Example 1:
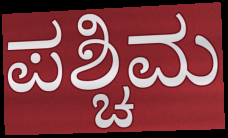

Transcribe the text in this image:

ಪಶ್ಚಿಮ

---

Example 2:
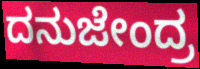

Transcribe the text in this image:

ದನುಜೇಂದ್ರ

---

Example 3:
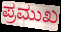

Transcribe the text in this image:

ಪ್ರಮುಖ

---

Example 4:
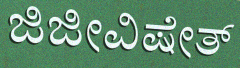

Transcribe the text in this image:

ಜಿಜೀವಿಷೇತ್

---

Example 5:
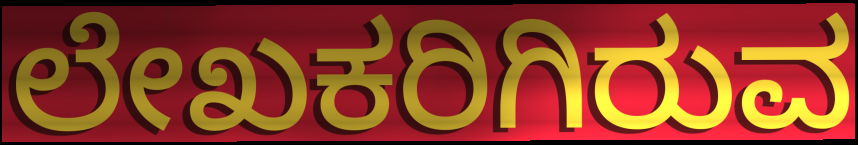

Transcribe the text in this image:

ಲೇಖಕರಿಗಿರುವ